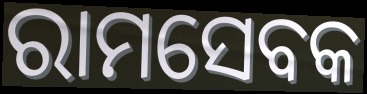
ରାମସେବକ